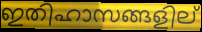
ഇതിഹാസങ്ങളില്